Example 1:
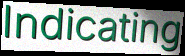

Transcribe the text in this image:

Indicating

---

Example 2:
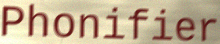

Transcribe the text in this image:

Phonifier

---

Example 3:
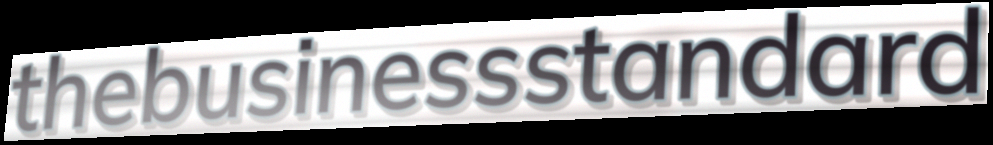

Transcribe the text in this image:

thebusinessstandard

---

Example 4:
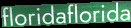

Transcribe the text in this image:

floridaflorida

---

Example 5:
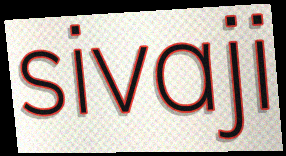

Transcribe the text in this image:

sivaji